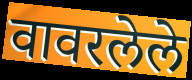
वावरलेले